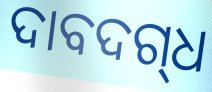
ଦାବଦଗ୍‍ଧ